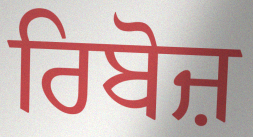
ਰਿਬੋਜ਼